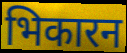
भिकारन